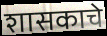
शासकाचे